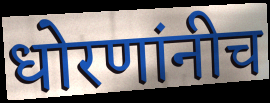
धोरणांनीच